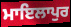
ਮਾਇਲਾਪੁਰ